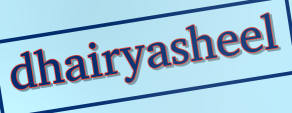
dhairyasheel